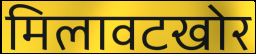
मिलावटखोर